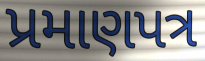
પ્રમાણપત્ર